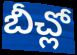
బీచ్లో